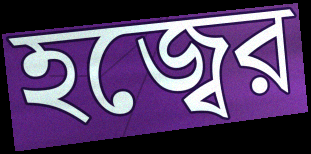
হজ্বের